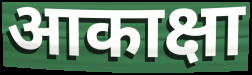
आकाक्षा